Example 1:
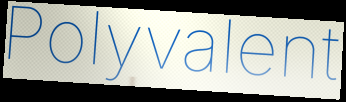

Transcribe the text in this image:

Polyvalent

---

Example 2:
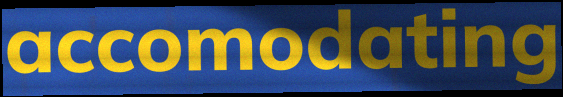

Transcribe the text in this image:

accomodating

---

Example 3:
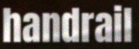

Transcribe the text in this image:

handrail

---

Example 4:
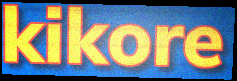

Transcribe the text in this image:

kikore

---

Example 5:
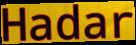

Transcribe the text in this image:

Hadar